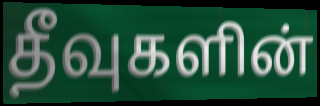
தீவுகளின்